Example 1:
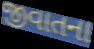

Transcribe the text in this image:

જીવાતના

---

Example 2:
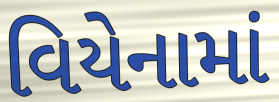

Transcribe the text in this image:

વિયેનામાં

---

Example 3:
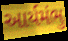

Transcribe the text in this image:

આર્યમંભુ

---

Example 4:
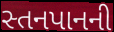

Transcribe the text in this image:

સ્તનપાનની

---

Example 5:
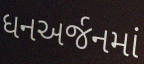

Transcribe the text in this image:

ધનઅર્જનમાં